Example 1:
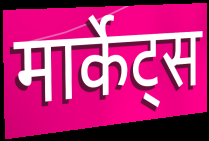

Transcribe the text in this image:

मार्केट्स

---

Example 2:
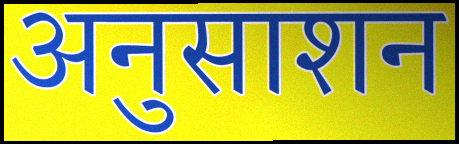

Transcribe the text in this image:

अनुसाशन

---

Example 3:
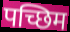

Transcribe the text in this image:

पच्छिम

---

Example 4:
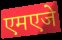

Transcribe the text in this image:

एमएजे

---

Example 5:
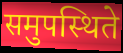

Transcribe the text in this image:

समुपस्थिते